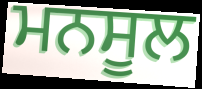
ਮਨਸੂਲ